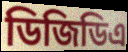
ডিজিডিএ